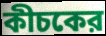
কীচকের